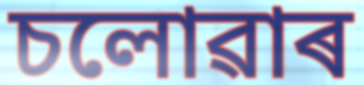
চলোৱাৰ